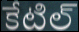
కేటిల్